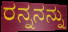
ರನ್ನನನ್ನು